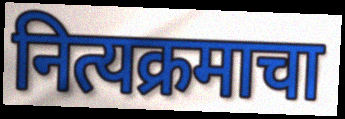
नित्यक्रमाचा